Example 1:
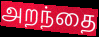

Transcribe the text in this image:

அறந்தை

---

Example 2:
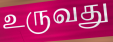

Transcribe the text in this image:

உருவது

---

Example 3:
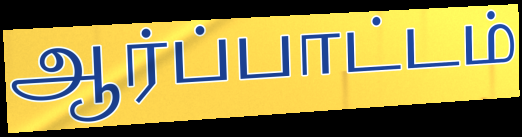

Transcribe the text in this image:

ஆர்ப்பாட்டம்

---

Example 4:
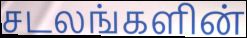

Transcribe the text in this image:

சடலங்களின்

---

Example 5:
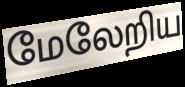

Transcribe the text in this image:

மேலேறிய